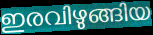
ഇരവിഴുങ്ങിയ